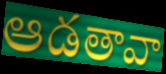
ఆడతావా